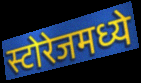
स्टोरेजमध्ये